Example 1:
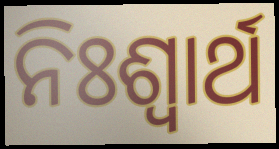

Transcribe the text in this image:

ନିଃଶ୍ୱାର୍ଥ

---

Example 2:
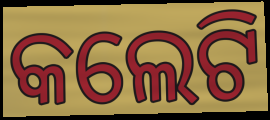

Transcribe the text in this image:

କଲେଟି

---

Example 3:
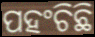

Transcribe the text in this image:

ପହଂଚିଛି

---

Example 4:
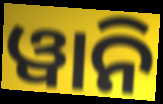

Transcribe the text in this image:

ୱାନି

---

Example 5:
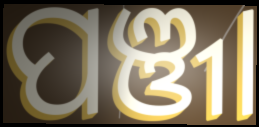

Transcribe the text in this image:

ପଞ୍ଜା